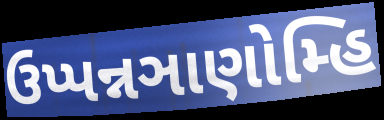
ઉપ્પન્નઞાણોમ્હિ